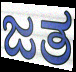
ಜತ